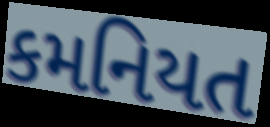
કમનિયત